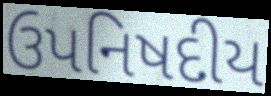
ઉપનિષદીય